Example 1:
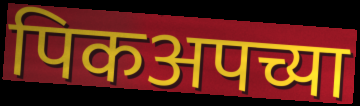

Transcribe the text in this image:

पिकअपच्या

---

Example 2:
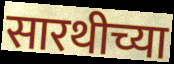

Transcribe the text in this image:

सारथीच्या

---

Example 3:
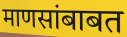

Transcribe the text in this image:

माणसांबाबत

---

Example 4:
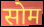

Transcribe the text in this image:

सोम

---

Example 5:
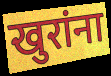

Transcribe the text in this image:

खुरांना